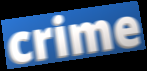
crime